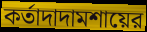
কর্তাদাদামশায়ের